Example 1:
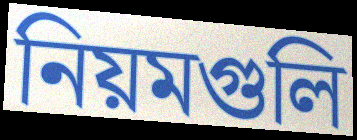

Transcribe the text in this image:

নিয়মগুলি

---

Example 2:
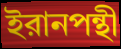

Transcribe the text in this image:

ইরানপন্থী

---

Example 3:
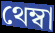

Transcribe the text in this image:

থেম্বা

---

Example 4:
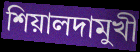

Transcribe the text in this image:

শিয়ালদামুখী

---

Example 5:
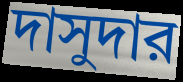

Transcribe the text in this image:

দাসুদার